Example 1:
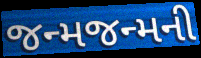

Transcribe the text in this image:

જન્મજન્મની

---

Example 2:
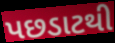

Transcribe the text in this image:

પછડાટથી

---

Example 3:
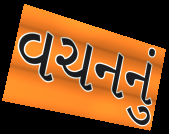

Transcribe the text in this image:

વચનનું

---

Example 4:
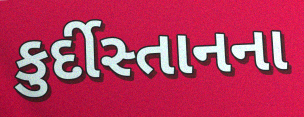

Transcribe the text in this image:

કુર્દીસ્તાનના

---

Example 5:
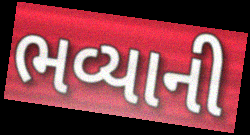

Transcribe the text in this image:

ભવ્યાની